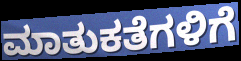
ಮಾತುಕತೆಗಳಿಗೆ